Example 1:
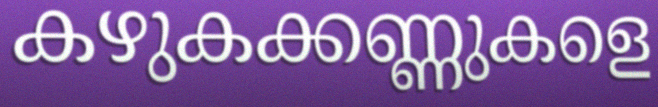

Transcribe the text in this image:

കഴുകക്കണ്ണുകളെ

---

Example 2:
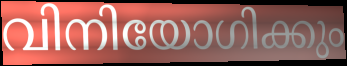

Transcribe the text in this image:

വിനിയോഗിക്കും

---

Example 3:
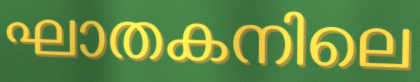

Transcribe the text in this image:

ഘാതകനിലെ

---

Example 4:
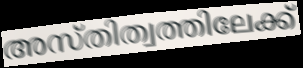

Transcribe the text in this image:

അസ്തിത്വത്തിലേക്ക്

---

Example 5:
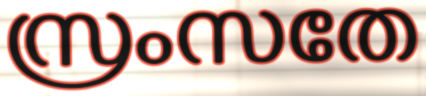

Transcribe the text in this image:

സ്രംസതേ